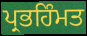
ਪ੍ਰਭਹਿੰਮਤ